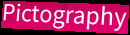
Pictography